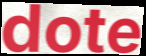
dote